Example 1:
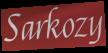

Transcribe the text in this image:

Sarkozy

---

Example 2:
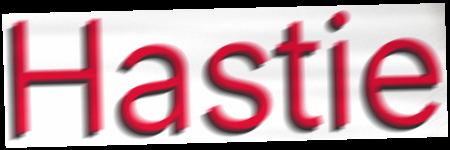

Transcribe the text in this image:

Hastie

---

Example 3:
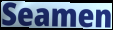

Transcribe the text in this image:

Seamen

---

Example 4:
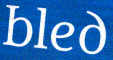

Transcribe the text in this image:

bled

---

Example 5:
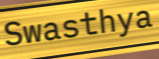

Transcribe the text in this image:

Swasthya